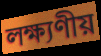
লক্ষ্যণীয়